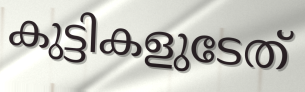
കുട്ടികളുടേത്